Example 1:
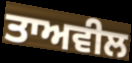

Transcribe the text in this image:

ਤਾਅਵੀਲ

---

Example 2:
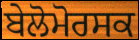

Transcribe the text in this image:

ਬੇਲੋਮੋਰਸਕ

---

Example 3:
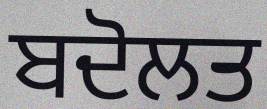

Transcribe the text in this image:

ਬਦੋਲਤ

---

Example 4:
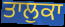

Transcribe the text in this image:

ਤਾਲੁਕਾ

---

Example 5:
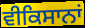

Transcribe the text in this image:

ਵੀਕਿਸਾਨਾਂ